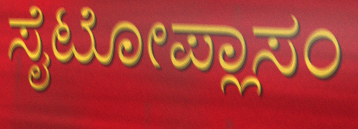
ಸೈಟೋಪ್ಲಾಸಂ